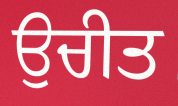
ਉਚੀਤ